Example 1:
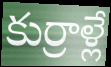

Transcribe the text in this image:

కుర్రాళ్లే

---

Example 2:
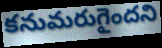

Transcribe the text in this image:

కనుమరుగైందని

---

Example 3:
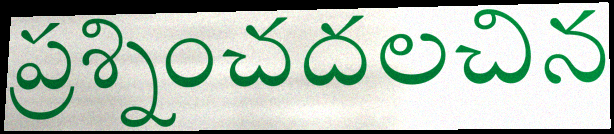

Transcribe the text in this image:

ప్రశ్నించదలచిన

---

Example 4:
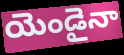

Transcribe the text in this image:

యెండైనా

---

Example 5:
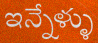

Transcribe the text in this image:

ఇన్నేళ్ళు